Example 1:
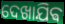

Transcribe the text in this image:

ଦେଖାଯିଵ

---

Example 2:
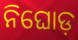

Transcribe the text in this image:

ନିଘୋଡ଼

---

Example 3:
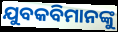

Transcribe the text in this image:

ଯୁବକବିମାନଙ୍କୁ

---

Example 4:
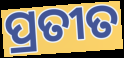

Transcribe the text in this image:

ପ୍ରତୀତ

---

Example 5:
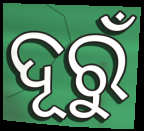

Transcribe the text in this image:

ଦୂରୁଁ